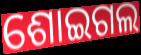
ଶୋଇଗଲ